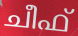
ചീഫ്